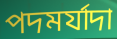
পদমৰ্যাদা